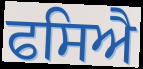
ਫਸਿਐ